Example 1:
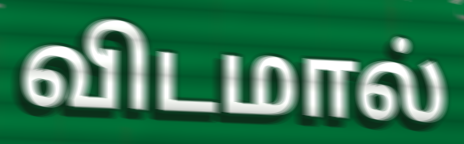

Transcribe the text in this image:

விடமால்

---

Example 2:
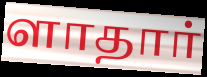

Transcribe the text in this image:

ளாதார்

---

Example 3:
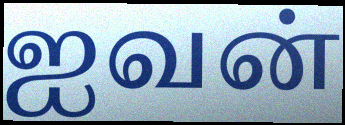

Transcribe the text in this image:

ஐவன்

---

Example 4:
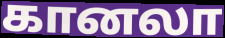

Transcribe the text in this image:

கானலா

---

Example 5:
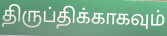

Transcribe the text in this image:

திருப்திக்காகவும்